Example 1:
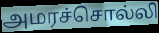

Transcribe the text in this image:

அமரச்சொல்லி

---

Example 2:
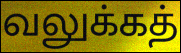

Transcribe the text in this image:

வலுக்கத்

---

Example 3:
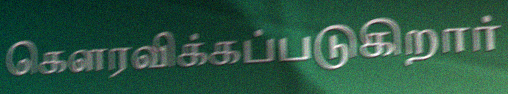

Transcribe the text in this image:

கௌரவிக்கப்படுகிறார்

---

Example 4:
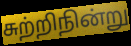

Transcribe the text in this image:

சுற்றிநின்று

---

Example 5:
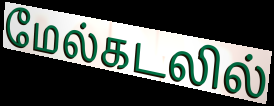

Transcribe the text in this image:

மேல்கடலில்